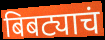
बिबट्याचं